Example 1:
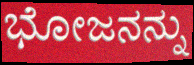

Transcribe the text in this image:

ಭೋಜನನ್ನು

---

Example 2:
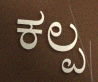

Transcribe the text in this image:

ಕಲ್ಪ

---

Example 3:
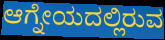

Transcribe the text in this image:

ಆಗ್ನೇಯದಲ್ಲಿರುವ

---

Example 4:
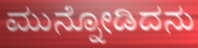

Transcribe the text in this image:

ಮುನ್ನೋಡಿದನು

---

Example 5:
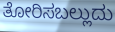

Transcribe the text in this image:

ತೋರಿಸಬಲ್ಲುದು